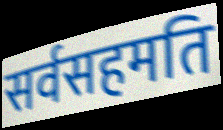
सर्वसहमति